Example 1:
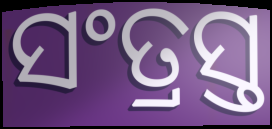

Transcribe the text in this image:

ସଂତ୍ରସ୍ତ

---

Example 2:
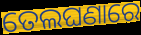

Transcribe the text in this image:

ତେଲଘଣାରେ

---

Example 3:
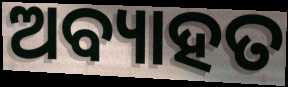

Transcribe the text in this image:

ଅବ୍ୟାହତ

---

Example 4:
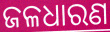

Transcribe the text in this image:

ଜଳଧାରଣ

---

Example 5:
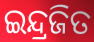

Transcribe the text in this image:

ଇନ୍ଦ୍ରଜିତ